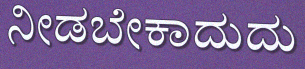
ನೀಡಬೇಕಾದುದು